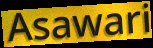
Asawari